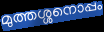
മുത്തശ്ശനൊപ്പം